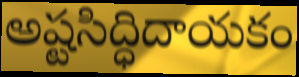
అష్టసిద్ధిదాయకం